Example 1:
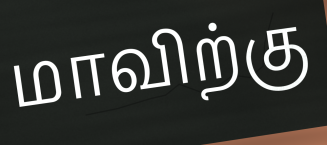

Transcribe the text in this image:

மாவிற்கு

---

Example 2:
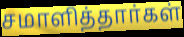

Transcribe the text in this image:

சமாளித்தார்கள்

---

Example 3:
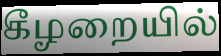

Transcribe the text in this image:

கீழறையில்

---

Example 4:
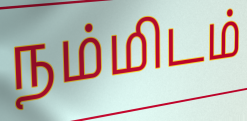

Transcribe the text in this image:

நம்மிடம்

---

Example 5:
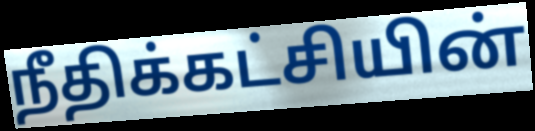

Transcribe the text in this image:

நீதிக்கட்சியின்